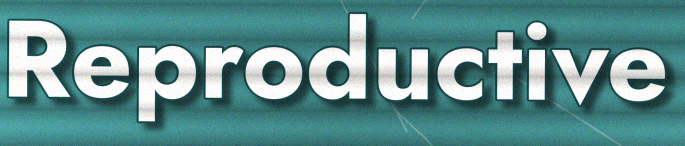
Reproductive